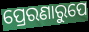
ପ୍ରେରଣାରୁପେ